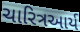
ચારિત્રઆર્ય